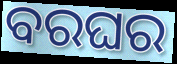
ବରଘର